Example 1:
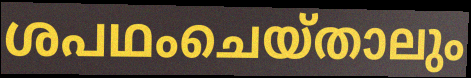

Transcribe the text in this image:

ശപഥംചെയ്താലും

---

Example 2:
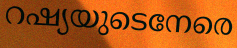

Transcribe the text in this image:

റഷ്യയുടെനേരെ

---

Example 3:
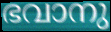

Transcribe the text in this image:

ഭവാനു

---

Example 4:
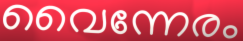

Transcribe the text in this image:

വൈന്നേരം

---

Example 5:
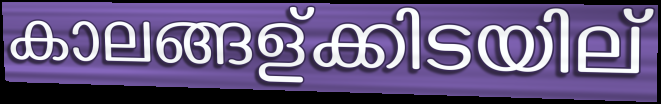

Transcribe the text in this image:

കാലങ്ങള്ക്കിടയില്